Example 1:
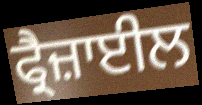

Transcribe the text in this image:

ਫ੍ਰੈਜ਼ਾਈਲ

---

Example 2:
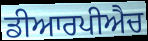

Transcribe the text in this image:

ਡੀਆਰਪੀਐਚ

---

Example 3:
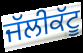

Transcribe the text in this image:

ਜੱਲੀਕੱਟੂ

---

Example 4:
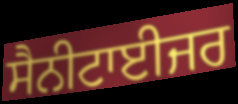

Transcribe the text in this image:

ਸੈਨੀਟਾਈਜਰ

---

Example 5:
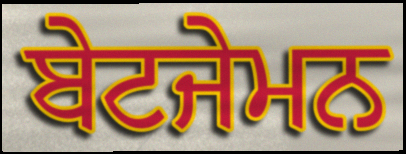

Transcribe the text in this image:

ਬੇਟਜੇਮਨ